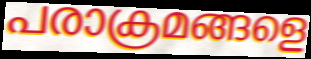
പരാക്രമങ്ങളെ